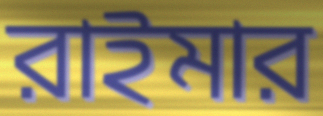
রাইমার